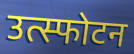
उत्स्फोटन